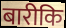
बारीकि